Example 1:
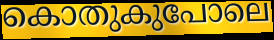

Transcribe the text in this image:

കൊതുകുപോലെ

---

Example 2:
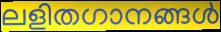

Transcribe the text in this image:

ലളിതഗാനങ്ങൾ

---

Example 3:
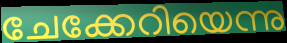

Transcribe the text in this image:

ചേക്കേറിയെന്നു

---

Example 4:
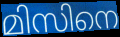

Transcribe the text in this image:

മിസിനെ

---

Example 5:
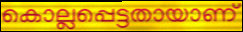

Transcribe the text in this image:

കൊല്ലപ്പെട്ടതായാണ്